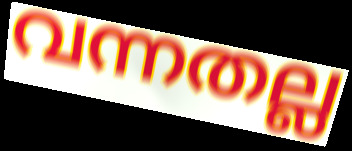
വന്നതല്ല